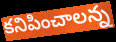
కనిపించాలన్న